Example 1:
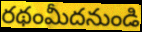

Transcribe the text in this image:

రథంమీదనుండి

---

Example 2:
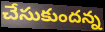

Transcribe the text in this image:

చేసుకుందన్న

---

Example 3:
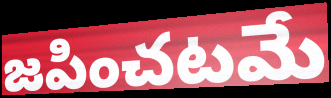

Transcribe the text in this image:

జపించటమే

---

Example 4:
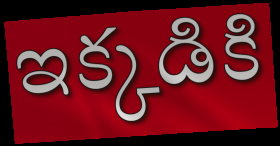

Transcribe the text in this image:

ఇక్కడికి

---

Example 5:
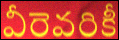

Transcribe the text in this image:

వీరెవరికీ